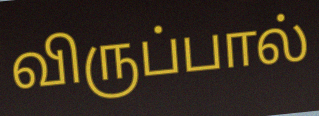
விருப்பால்